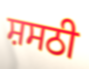
ਸ਼ਸਠੀ